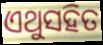
ଏଥୁସହିତ